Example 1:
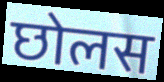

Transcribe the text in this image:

छोलस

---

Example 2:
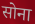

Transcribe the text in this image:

सोना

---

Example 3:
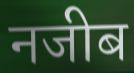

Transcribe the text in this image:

नजीब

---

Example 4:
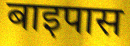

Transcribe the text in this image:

बाइपास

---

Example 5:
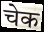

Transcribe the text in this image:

चेक